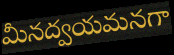
మీనద్వయమనగా